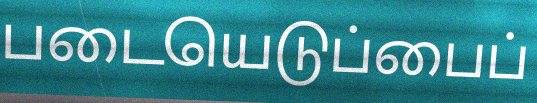
படையெடுப்பைப்